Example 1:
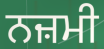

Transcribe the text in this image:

ਨਜ਼ਮੀ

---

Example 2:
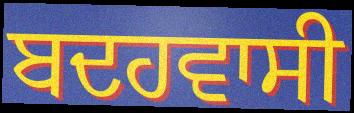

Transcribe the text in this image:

ਬਦਹਵਾਸੀ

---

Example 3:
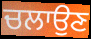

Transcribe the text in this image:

ਚਲਾਉਣ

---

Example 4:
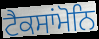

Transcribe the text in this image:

ਟੈਕਸਾਂਮੋਨਿ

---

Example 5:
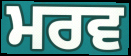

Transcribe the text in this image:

ਮਰਵ